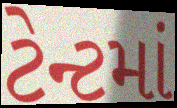
ટેન્ટમાં